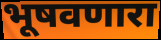
भूषवणारा